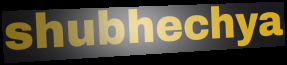
shubhechya